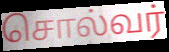
சொல்வர்